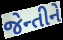
જેન્તીને